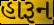
હારૂન